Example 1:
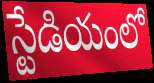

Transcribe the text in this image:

స్టేడియంలో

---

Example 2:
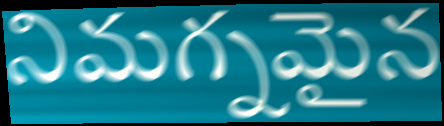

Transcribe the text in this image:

నిమగ్నమైన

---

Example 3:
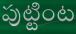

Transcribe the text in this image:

పుట్టింట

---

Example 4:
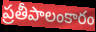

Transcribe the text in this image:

ప్రతీపాలంకారం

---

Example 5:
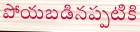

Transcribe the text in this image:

పోయబడినప్పటికి